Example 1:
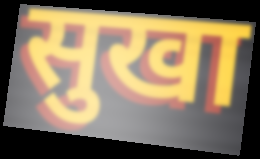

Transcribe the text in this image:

सुखा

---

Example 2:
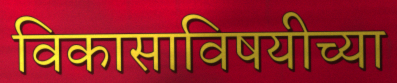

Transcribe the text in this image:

विकासाविषयीच्या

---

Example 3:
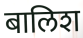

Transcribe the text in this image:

बालिश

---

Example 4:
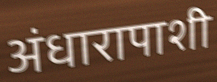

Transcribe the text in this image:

अंधारापाशी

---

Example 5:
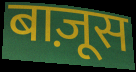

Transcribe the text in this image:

बाज़ूस